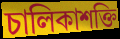
চালিকাশক্তি